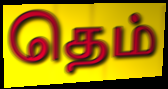
தெம்